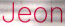
Jeon